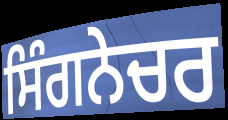
ਸਿੰਗਨੇਚਰ